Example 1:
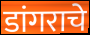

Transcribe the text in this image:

डांगराचे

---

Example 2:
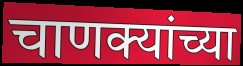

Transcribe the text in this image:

चाणक्यांच्या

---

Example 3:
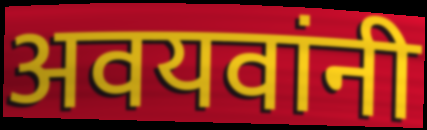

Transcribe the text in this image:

अवयवांनी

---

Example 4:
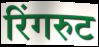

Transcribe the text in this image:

रिंगरुट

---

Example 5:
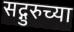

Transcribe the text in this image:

सद्गुरुच्या